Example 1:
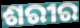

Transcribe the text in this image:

ଶରୀର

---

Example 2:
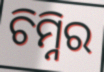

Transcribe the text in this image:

ଚିମ୍ନିର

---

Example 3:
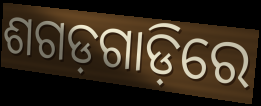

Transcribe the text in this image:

ଶଗଡ଼ଗାଡ଼ିରେ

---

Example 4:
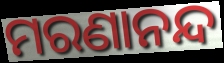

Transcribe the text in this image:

ମରଣାନନ୍ଦ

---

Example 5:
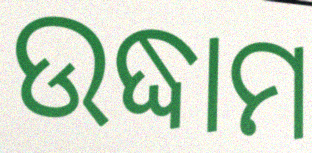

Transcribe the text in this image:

ଉଦ୍ଧାମ